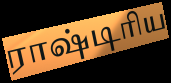
ராஷ்டிரிய